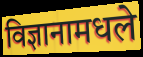
विज्ञानामधले